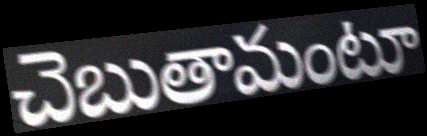
చెబుతామంటూ